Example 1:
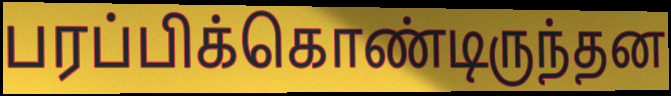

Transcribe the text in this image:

பரப்பிக்கொண்டிருந்தன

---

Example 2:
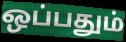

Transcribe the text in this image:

ஒப்பதும்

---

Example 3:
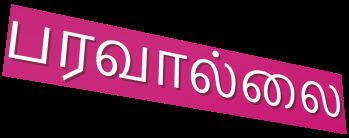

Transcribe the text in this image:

பரவால்லை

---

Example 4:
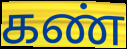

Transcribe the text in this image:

கண்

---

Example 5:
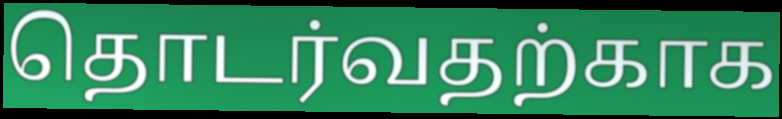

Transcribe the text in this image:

தொடர்வதற்காக